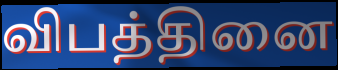
விபத்தினை